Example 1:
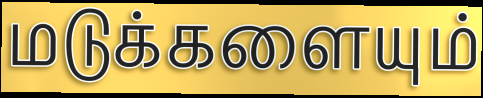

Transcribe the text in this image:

மடுக்களையும்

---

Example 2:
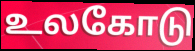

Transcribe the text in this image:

உலகோடு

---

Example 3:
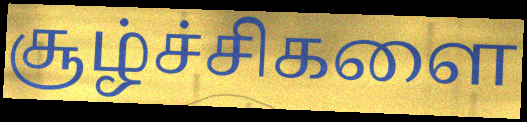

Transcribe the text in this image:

சூழ்ச்சிகளை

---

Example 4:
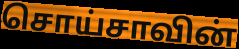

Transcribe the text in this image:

சொய்சாவின்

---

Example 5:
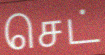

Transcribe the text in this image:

செட்